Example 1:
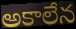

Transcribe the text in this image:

అకాలేన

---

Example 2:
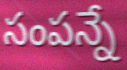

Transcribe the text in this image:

సంపన్నే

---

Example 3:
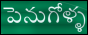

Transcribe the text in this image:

పెనుగోళ్ళ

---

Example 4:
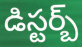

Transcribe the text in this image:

డిస్టర్బ్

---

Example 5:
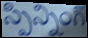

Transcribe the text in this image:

స్పిన్నింగ్